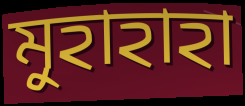
মুহাহাহা